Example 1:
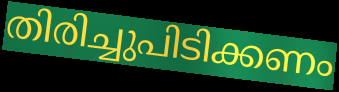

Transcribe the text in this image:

തിരിച്ചുപിടിക്കണം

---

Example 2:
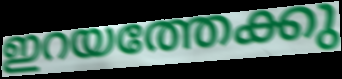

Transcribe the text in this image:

ഇറയത്തേക്കു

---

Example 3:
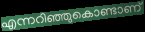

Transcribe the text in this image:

എന്നറിഞ്ഞുകൊണ്ടാണ്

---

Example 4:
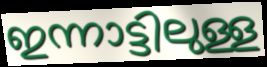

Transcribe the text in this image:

ഇന്നാട്ടിലുള്ള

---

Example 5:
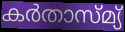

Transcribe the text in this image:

കർതാസ്മ്യ്